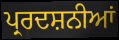
ਪ੍ਰਰਦਸ਼ਨੀਆਂ